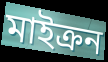
মাইক্রন